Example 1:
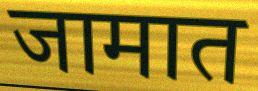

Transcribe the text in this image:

जामात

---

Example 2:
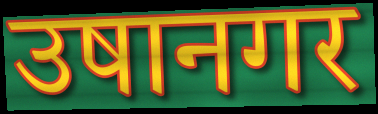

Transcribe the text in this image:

उषानगर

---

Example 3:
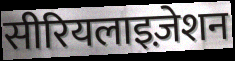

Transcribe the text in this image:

सीरियलाइज़ेशन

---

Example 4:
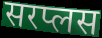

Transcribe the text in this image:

सरप्लस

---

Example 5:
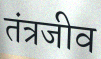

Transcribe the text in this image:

तंत्रजीव